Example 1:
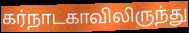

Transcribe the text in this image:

கர்நாடகாவிலிருந்து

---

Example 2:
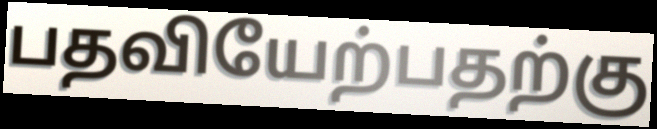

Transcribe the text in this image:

பதவியேற்பதற்கு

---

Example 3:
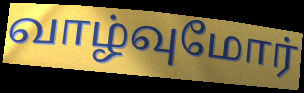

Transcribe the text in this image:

வாழ்வுமோர்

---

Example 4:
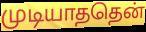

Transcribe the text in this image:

முடியாததென்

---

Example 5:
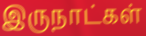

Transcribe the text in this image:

இருநாட்கள்